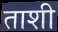
ताशी